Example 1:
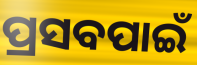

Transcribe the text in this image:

ପ୍ରସବପାଇଁ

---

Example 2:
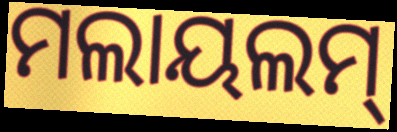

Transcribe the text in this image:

ମଲାୟଲମ୍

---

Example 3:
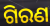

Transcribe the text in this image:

ଗିରଣ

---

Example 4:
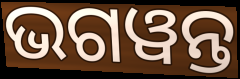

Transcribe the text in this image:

ଭଗୱନ୍ତ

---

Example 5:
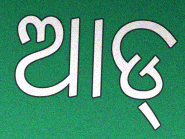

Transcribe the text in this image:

ଆଡ୍